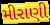
મીરાણી